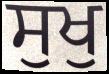
ਸੁਖੁ